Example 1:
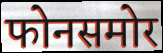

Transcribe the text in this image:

फोनसमोर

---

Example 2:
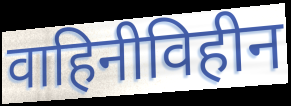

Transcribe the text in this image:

वाहिनीविहीन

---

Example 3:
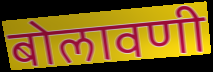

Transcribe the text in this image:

बोलावणी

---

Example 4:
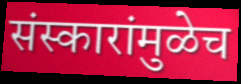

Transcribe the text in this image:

संस्कारांमुळेच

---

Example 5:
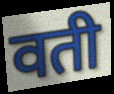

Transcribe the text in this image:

वती